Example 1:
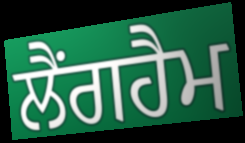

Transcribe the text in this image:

ਲੈਂਗਹੈਮ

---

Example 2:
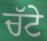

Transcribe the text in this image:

ਚੱਟੇ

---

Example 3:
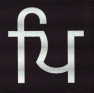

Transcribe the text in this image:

ਪਿ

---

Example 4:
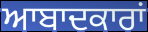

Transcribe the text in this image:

ਆਬਾਦਕਾਰਾਂ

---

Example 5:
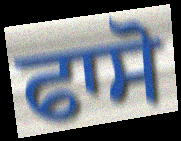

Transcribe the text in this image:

ਫਾਸੋ